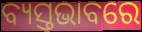
ବ୍ୟସ୍ତଭାବରେ